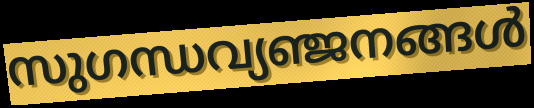
സുഗന്ധവ്യഞ്ജനങ്ങൾ